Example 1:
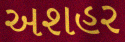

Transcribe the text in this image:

અશહર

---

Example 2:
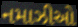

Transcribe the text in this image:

નમાઝીઓ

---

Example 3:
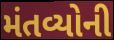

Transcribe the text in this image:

મંતવ્યોની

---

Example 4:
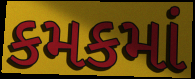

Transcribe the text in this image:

કમકમાં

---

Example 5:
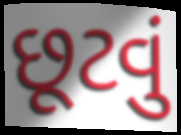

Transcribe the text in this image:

છૂટવું